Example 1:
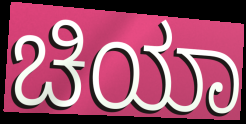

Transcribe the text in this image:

ಚಿಯಾ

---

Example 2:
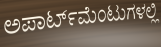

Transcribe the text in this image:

ಅಪಾರ್ಟ್‌ಮೆಂಟುಗಳಲ್ಲಿ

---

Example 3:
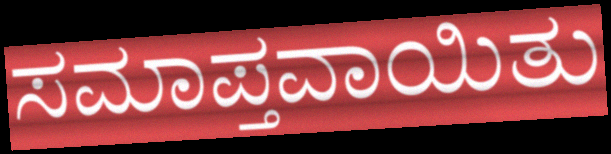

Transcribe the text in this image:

ಸಮಾಪ್ತವಾಯಿತು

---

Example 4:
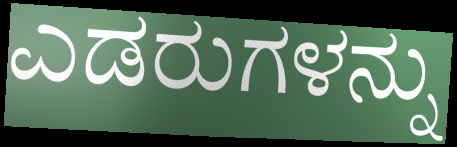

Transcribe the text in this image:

ಎಡರುಗಳನ್ನು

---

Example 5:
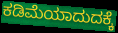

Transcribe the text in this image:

ಕಡಿಮೆಯಾದುದಕ್ಕೆ